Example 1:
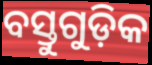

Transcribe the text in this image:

ବସ୍ତୁଗୁଡ଼ିକ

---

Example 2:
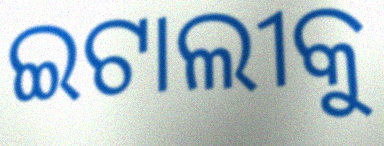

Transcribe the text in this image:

ଇଟାଲୀକୁ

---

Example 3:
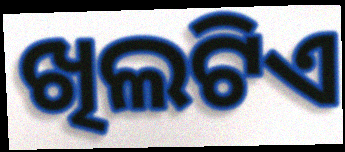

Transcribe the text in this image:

ଖିଲଟିଏ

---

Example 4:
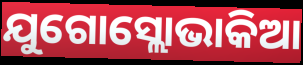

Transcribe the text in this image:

ଯୁଗୋସ୍ଲୋଭାକିଆ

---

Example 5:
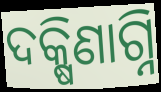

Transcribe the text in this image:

ଦକ୍ଷିଣାଗ୍ନି